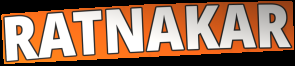
RATNAKAR